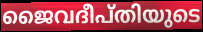
ജൈവദീപ്തിയുടെ